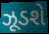
ઝૂડશે